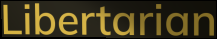
Libertarian